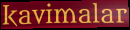
kavimalar